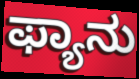
ಫ್ಯಾನು